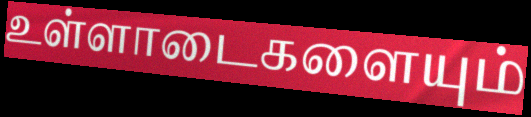
உள்ளாடைகளையும்